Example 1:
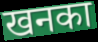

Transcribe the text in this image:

खनका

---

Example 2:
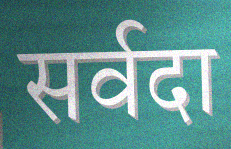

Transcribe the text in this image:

सर्वदा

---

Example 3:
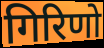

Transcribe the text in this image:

गिरिणो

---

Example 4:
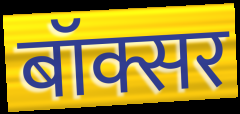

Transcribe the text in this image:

बॉक्सर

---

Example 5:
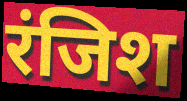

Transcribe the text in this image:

रंजिश